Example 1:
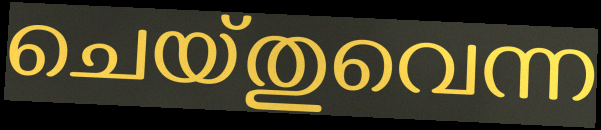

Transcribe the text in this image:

ചെയ്തുവെന്ന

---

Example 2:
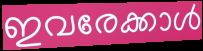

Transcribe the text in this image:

ഇവരേക്കാൾ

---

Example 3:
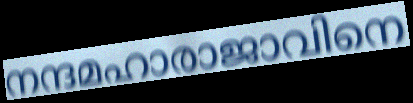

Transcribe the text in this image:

നന്ദമഹാരാജാവിനെ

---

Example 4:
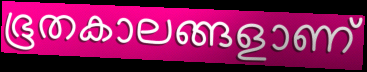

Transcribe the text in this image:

ഭൂതകാലങ്ങളാണ്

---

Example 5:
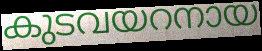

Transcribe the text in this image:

കുടവയറനായ